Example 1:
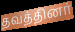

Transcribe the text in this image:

தவத்தினர்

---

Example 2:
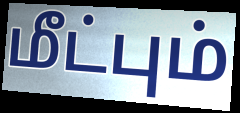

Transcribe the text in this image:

மீட்பும்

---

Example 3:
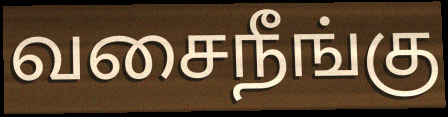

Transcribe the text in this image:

வசைநீங்கு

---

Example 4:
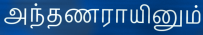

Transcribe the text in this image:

அந்தணராயினும்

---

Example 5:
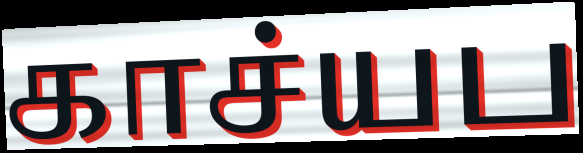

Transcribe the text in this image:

காச்யப